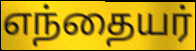
எந்தையர்